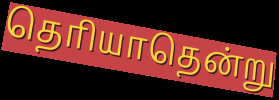
தெரியாதென்று